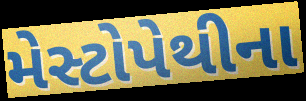
મેસ્ટોપેથીના